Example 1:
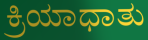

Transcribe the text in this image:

ಕ್ರಿಯಾಧಾತು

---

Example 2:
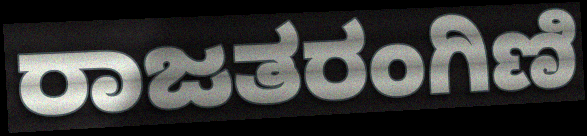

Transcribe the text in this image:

ರಾಜತರಂಗಿಣಿ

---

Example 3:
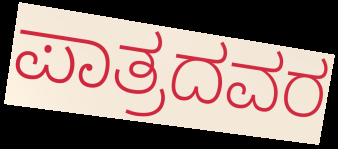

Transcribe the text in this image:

ಪಾತ್ರದವರ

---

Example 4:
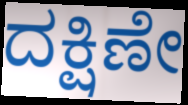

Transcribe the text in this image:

ದಕ್ಷಿಣೇ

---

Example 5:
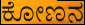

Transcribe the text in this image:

ಕೋಣನ